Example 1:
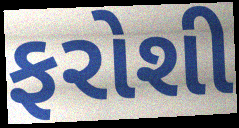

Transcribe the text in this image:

ફરોશી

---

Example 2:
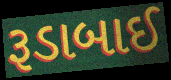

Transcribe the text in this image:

રૂડાબાઈ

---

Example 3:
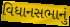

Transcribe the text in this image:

વિધાનસભાનું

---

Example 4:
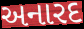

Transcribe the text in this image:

અનારદ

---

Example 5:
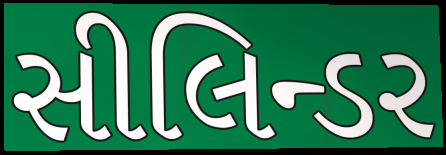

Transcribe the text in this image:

સીલિન્ડર